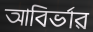
আবিৰ্ভাৱ